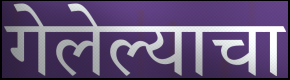
गेलेल्याचा